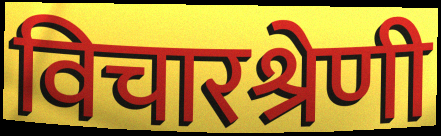
विचारश्रेणी